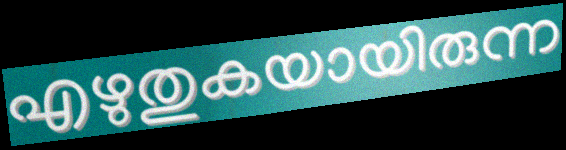
എഴുതുകയായിരുന്ന